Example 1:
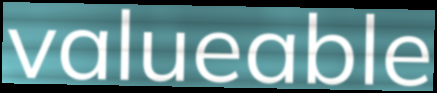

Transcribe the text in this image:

valueable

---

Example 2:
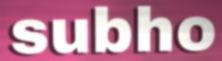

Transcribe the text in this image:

subho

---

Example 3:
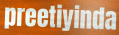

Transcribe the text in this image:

preetiyinda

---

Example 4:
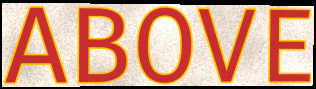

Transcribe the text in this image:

ABOVE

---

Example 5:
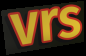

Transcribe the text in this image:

vrs